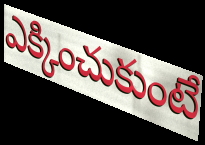
ఎక్కించుకుంటే